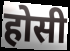
होसी